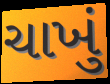
ચાખું